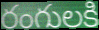
రంగులకి